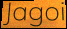
Jagoi